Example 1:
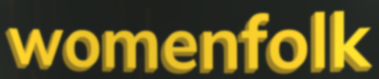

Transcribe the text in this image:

womenfolk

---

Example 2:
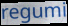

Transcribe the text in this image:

regumi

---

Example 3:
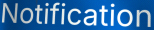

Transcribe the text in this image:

Notification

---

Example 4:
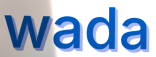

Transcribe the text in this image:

wada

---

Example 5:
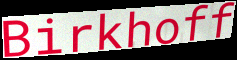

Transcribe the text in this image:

Birkhoff